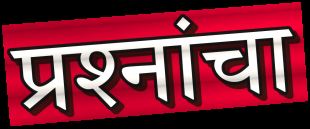
प्रश्‍नांचा